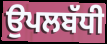
ਉਪਲਬੱਧੀ